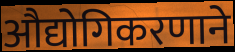
औद्योगिकरणाने